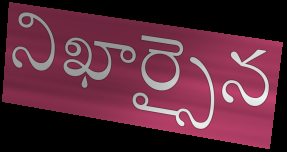
నిఖార్సైన